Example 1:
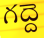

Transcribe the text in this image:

గద్దె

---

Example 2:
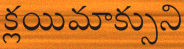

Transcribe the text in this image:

క్లయిమాక్సుని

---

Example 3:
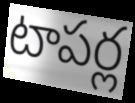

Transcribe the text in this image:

టాపర్ల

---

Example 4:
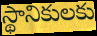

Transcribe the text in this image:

స్థానికులకు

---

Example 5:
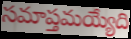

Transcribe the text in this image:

సమాప్తమయ్యేది